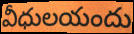
వీధులయందు